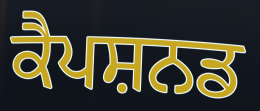
ਕੈਪਸ਼ਨਡ